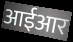
आईआर